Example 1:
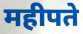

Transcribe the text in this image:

महीपते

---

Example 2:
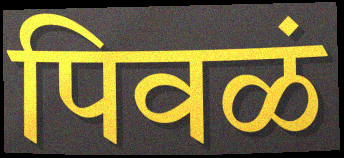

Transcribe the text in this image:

पिवळं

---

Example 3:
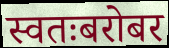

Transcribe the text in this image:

स्वतःबरोबर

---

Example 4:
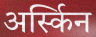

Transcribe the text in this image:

अर्स्किन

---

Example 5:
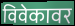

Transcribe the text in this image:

विवेकावर